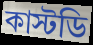
কাস্টডি